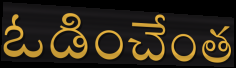
ఓడించేంత